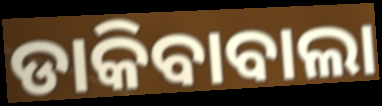
ଡାକିବାବାଲା